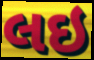
લઇ